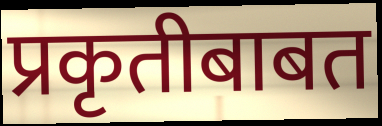
प्रकृतीबाबत